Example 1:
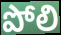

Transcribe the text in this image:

పోలి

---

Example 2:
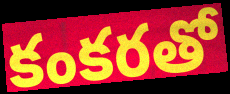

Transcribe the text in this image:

కంకరతో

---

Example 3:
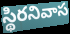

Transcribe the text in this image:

స్థిరనివాస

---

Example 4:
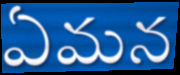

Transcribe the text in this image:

ఏమన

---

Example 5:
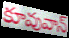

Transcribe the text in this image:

కూవువాన్